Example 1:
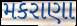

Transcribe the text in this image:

મકરાણા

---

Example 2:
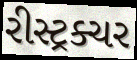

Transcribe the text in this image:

રીસ્ટ્રક્ચર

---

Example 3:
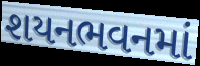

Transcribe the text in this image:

શયનભવનમાં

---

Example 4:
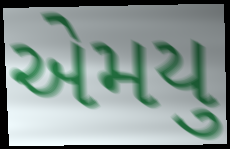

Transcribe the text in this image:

એમયુ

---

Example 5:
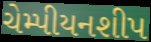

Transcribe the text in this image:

ચેમ્પીયનશીપ